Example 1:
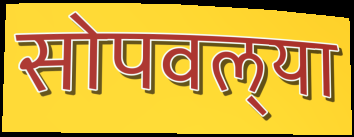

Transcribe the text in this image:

सोपवल्या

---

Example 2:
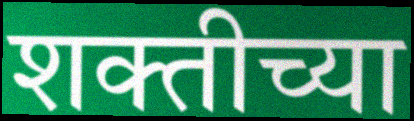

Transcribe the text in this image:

शक्तीच्या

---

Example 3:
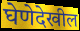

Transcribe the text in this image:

घेणेदेखील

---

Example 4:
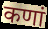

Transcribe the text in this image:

कणां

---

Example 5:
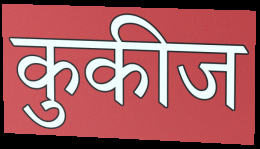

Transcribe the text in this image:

कुकीज